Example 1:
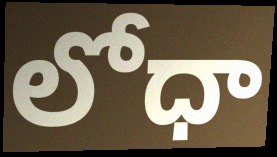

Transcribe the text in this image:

లోధా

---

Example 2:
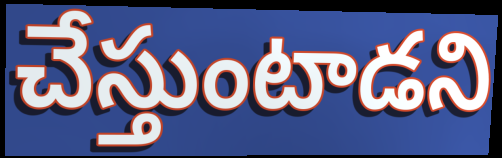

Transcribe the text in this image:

చేస్తుంటాడని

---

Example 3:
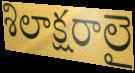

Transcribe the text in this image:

శిలాక్షరాలై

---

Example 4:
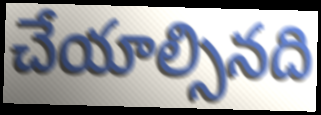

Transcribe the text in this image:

చేయాల్సినది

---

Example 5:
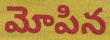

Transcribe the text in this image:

మోపిన